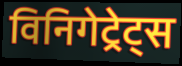
विनिगेट्रेट्स